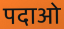
पदाओ